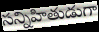
సన్నిహితుడుగా